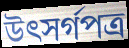
উৎসর্গপত্র